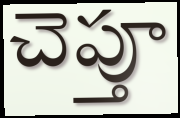
చెప్తూ